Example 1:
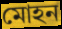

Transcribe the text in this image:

মোহন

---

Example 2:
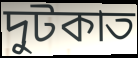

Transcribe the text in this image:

দুটকাত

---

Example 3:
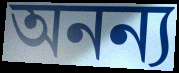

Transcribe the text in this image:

অনন্য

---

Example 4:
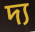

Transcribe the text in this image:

দ্য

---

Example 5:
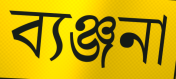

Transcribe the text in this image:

ব্যঞ্জনা